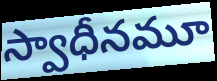
స్వాధీనమూ